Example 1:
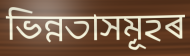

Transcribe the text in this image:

ভিন্নতাসমূহৰ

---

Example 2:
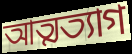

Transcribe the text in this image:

আত্মত্যাগ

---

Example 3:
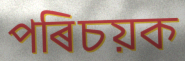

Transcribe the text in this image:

পৰিচয়ক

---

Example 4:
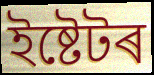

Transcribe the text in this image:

ইষ্টেটৰ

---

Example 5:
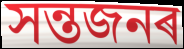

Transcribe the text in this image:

সন্তজনৰ